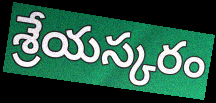
శ్రేయస్కరం